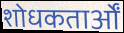
शोधकतार्ओं